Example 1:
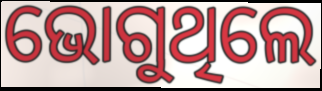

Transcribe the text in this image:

ଭୋଗୁଥିଲେ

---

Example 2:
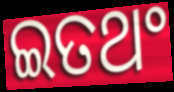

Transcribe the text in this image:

ଇତଥଂ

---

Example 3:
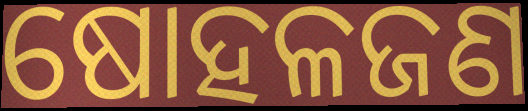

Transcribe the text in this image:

ଷୋହଳଜଣ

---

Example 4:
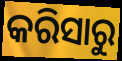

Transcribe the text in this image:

କରିସାରୁ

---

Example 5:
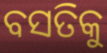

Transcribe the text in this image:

ବସତିକୁ